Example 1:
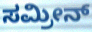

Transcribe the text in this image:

ಸಮ್ರೀನ್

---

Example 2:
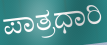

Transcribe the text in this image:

ಪಾತ್ರಧಾರಿ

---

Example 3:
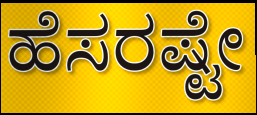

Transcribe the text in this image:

ಹೆಸರಷ್ಟೇ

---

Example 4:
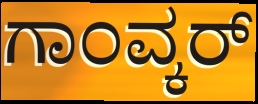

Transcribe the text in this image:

ಗಾಂವ್ಕರ್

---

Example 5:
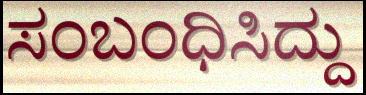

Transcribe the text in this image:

ಸಂಬಂಧಿಸಿದ್ದು